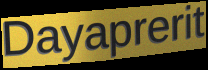
Dayaprerit